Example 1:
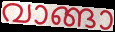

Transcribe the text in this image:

വാങ്ങാ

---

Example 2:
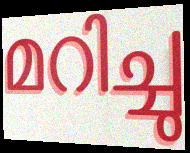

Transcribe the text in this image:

മറിച്ചു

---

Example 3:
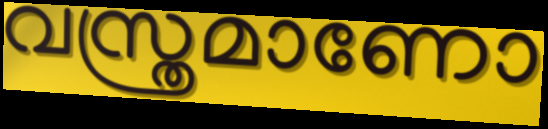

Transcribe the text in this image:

വസ്ത്രമാണോ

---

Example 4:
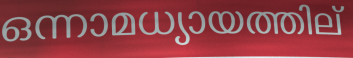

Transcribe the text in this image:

ഒന്നാമധ്യായത്തില്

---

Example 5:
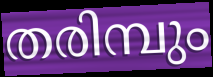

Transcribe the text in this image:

തരിമ്പും